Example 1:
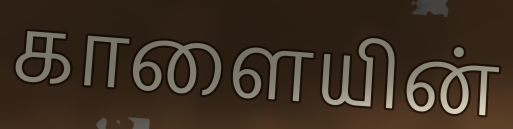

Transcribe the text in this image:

காளையின்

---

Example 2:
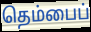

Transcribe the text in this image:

தெம்பைப்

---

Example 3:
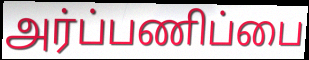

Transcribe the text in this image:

அர்ப்பணிப்பை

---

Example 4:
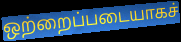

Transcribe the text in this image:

ஒற்றைப்படையாகச்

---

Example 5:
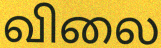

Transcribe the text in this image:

விலை